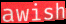
awish